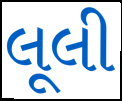
લૂલી